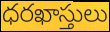
ధరఖాస్తులు